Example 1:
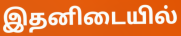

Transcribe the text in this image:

இதனிடையில்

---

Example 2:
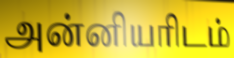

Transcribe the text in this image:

அன்னியரிடம்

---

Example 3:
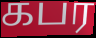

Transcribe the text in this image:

கபர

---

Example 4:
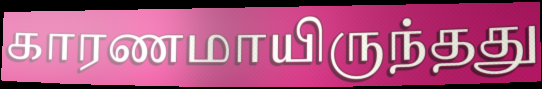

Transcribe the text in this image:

காரணமாயிருந்தது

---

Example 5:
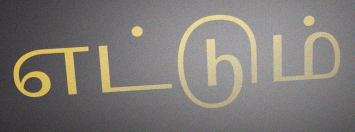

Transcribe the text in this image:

எட்டும்